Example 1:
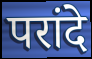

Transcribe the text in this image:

परांदे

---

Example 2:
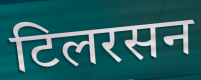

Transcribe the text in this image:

टिलरसन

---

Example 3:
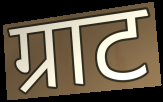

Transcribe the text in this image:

ग्राट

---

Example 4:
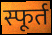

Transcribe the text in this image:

स्‍फूर्त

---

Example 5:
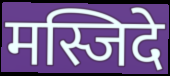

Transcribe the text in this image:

मस्जिदे